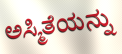
ಅಸ್ಮಿತೆಯನ್ನು